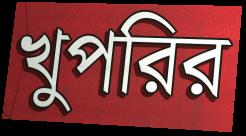
খুপরির